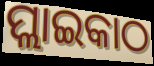
ପ୍ଲାଇକାଠ